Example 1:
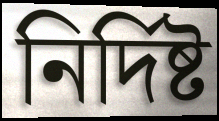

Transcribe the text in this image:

নির্দিষ্ট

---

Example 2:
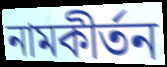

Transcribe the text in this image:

নামকীর্তন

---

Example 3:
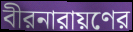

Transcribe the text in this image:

বীরনারায়ণের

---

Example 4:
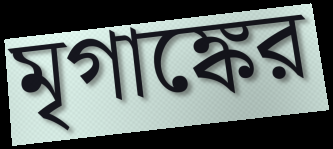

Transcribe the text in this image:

মৃগাঙ্কের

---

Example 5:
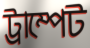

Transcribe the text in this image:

ট্রাম্পেট